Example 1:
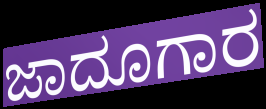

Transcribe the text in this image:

ಜಾದೂಗಾರ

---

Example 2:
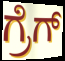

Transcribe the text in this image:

ಗ್ರೆಗ್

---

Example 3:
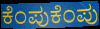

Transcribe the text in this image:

ಕೆಂಪುಕೆಂಪು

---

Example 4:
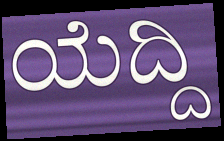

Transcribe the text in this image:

ಯೆದ್ದಿ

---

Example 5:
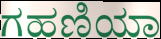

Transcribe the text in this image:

ಗಹಣಿಯಾ